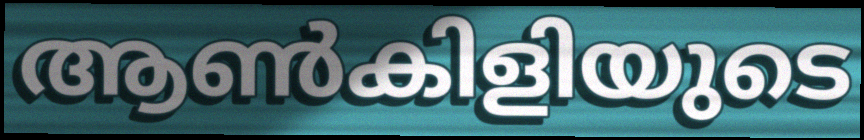
ആൺകിളിയുടെ